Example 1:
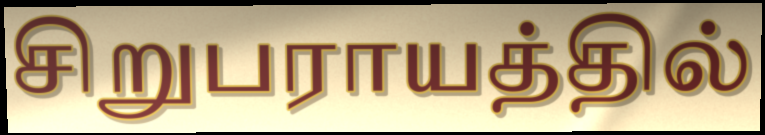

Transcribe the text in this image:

சிறுபராயத்தில்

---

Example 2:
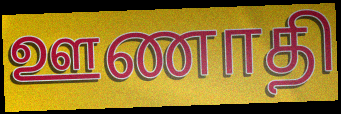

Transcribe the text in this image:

ஊணாதி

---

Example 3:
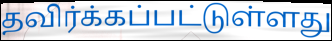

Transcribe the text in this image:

தவிர்க்கப்பட்டுள்ளது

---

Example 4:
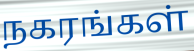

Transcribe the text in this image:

நகரங்கள்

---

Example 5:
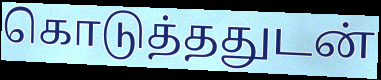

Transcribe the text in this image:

கொடுத்ததுடன்